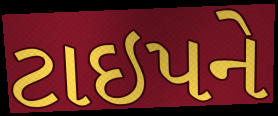
ટાઇપને